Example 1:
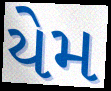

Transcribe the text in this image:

યેમ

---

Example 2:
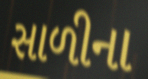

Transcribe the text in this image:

સાળીના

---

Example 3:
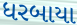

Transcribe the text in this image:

ધરબાયા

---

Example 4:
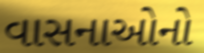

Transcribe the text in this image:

વાસનાઓનો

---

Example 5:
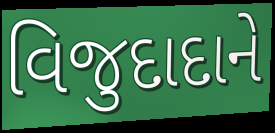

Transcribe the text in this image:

વિજુદાદાને